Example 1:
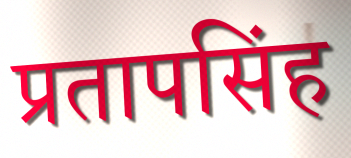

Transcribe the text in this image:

प्रतापसिंह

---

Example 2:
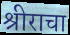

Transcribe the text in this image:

श्रीराचा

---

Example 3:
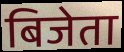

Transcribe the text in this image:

बिजेता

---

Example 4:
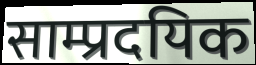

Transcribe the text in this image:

साम्प्रदयिक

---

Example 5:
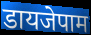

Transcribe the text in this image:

डायजेपाम